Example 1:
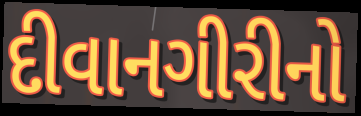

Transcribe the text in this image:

દીવાનગીરીનો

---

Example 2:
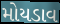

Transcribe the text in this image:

મોયડાવ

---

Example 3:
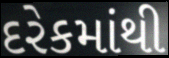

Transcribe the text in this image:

દરેકમાંથી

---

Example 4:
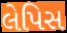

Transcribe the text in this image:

લેપિસ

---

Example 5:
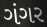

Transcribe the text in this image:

ગંગર